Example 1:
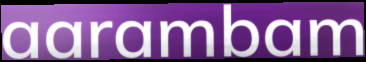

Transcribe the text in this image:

aarambam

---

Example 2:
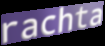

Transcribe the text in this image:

rachta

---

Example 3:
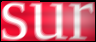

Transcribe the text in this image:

sur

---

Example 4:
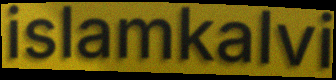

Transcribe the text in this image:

islamkalvi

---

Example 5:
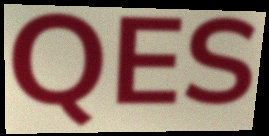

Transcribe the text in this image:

QES